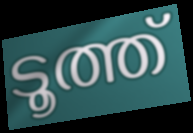
ടൂത്ത്